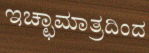
ಇಚ್ಛಾಮಾತ್ರದಿಂದ